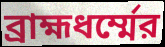
ব্রাহ্মধর্ম্মের